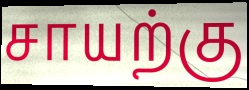
சாயற்கு